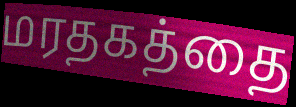
மரதகத்தை